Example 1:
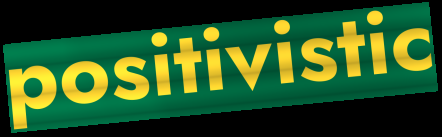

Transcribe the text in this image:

positivistic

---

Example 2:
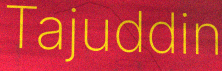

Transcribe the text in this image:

Tajuddin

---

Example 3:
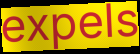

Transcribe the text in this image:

expels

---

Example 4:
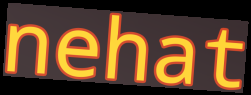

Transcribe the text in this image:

nehat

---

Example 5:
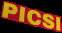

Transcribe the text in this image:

PICSI